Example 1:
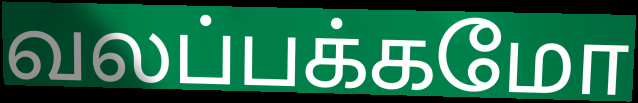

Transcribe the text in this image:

வலப்பக்கமோ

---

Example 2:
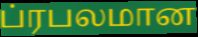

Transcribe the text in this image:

ப்ரபலமான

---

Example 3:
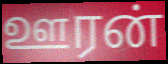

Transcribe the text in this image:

ஊரன்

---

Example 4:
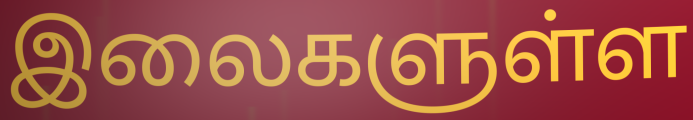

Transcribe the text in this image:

இலைகளுள்ள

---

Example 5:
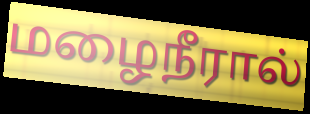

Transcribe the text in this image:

மழைநீரால்